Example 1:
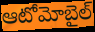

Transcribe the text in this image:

ఆటోమోబైల్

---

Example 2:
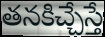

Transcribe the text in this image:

తనకిచ్చేస్తే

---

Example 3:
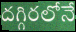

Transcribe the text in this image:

దగ్గిరలోనే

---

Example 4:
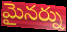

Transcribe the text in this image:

మైనర్ను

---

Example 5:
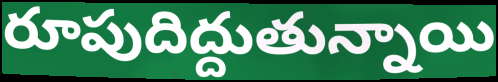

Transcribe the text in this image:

రూపుదిద్దుతున్నాయి